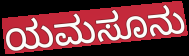
ಯಮಸೂನು